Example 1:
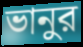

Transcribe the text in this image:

ভানুর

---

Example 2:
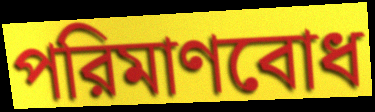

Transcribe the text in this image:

পরিমাণবোধ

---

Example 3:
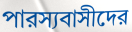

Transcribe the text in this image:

পারস্যবাসীদের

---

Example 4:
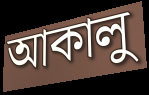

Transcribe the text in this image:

আকালু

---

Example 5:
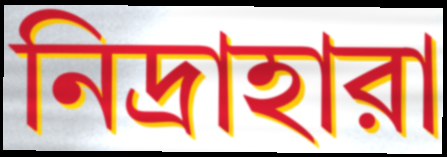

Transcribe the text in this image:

নিদ্রাহারা